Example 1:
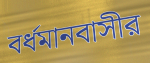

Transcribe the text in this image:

বর্ধমানবাসীর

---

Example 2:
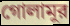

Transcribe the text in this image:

গোলামুর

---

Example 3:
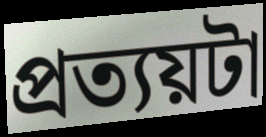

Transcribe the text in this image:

প্রত্যয়টা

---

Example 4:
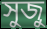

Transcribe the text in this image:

সুজু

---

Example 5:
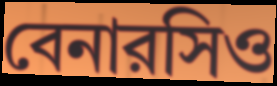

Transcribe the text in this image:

বেনারসিও